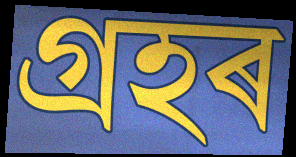
গ্ৰহৰ